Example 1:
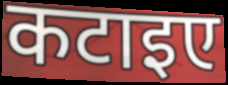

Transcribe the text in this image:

कटाइए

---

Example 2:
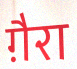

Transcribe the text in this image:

ग़ैरा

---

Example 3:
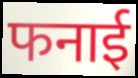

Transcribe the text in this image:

फनाई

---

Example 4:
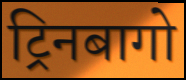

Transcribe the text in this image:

ट्रिनबागो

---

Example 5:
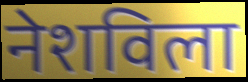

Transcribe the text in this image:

नेशविला